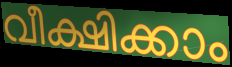
വീക്ഷിക്കാം